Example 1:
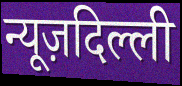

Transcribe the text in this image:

न्यूज़दिल्ली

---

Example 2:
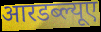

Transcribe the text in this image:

आरडब्ल्यूए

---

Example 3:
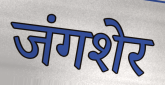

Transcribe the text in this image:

जंगशेर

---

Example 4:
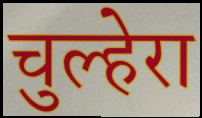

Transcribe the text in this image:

चुल्हेरा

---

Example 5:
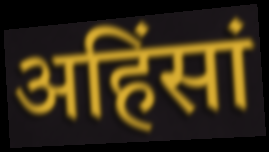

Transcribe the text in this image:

अहिंसां